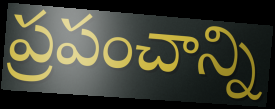
ప్రపంచాన్ని